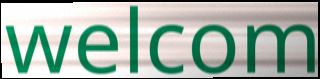
welcom